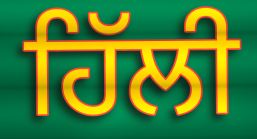
ਹਿੱਲੀ